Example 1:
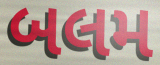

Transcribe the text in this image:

બલમ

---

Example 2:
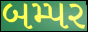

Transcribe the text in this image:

બમ્પર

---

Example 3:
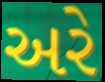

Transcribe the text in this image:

અરે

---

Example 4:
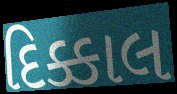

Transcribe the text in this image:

દિક્કાલ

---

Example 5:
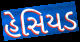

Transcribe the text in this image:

હેસિયડ